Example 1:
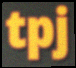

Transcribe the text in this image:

tpj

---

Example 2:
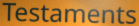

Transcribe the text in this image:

Testaments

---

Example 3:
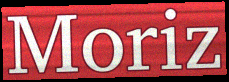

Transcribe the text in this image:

Moriz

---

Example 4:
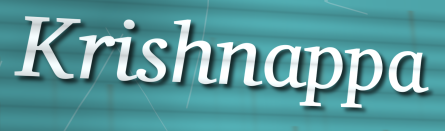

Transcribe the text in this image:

Krishnappa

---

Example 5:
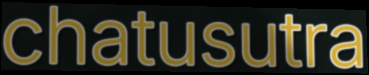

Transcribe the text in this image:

chatusutra